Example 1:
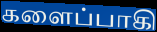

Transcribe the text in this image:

களைப்பாகி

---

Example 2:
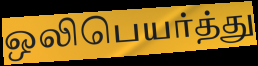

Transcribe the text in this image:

ஒலிபெயர்த்து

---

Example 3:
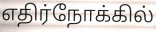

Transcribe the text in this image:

எதிர்நோக்கில்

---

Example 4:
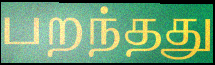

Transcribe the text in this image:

பறந்தது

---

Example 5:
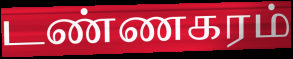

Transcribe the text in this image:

டண்ணகரம்